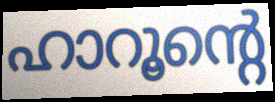
ഹാറൂന്റെ